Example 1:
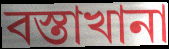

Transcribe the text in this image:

বস্তাখানা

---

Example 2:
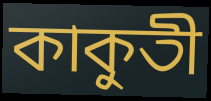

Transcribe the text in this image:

কাকুতী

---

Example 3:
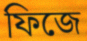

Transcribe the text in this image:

ফিজে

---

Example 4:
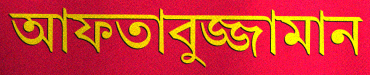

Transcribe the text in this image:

আফতাবুজ্জামান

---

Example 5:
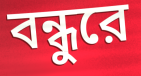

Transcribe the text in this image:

বন্ধুরে